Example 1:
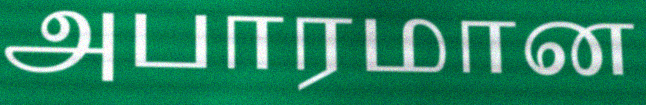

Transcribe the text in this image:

அபாரமான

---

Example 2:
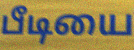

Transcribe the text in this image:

பீடியை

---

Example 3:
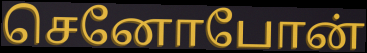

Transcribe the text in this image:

செனோபோன்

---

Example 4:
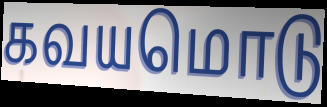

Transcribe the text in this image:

கவயமொடு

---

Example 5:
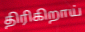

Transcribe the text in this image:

திரிகிறாய்